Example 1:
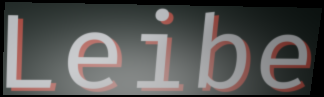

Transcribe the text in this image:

Leibe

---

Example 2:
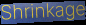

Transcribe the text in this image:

Shrinkage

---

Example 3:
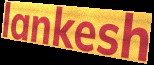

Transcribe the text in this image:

lankesh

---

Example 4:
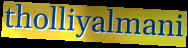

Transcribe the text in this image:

tholliyalmani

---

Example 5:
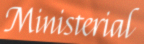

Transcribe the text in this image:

Ministerial